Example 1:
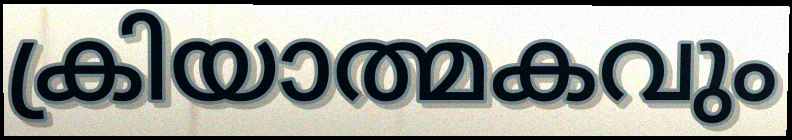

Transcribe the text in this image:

ക്രിയാത്മകവും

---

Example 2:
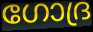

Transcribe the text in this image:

ഗോദ്ര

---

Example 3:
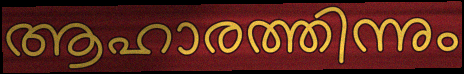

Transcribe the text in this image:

ആഹാരത്തിന്നും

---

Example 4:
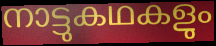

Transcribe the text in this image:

നാട്ടുകഥകളും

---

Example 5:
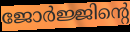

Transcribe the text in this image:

ജോർജ്ജിന്റെ